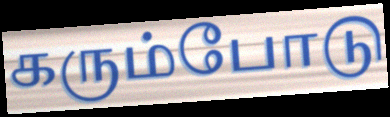
கரும்போடு